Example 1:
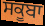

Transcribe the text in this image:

ਸਕੂਬਾ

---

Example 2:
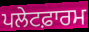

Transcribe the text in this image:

ਪਲੇਟਫ਼ਾਰਮ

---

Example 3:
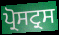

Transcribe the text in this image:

ਪ੍ਰੋਸਟ੍ਰਸ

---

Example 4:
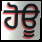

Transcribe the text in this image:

ਹੋਊ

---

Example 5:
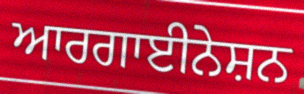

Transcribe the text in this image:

ਆਰਗਾਈਨੇਸ਼ਨ